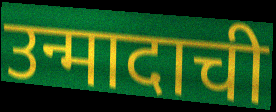
उन्मादाची